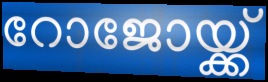
റോജോയ്ക്ക്